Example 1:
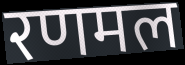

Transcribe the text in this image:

रणमल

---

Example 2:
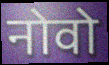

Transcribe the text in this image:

नोवो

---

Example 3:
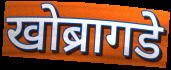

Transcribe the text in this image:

खोब्रागडे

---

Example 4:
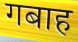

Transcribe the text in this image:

गबाह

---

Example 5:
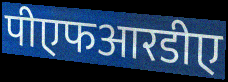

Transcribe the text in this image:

पीएफआरडीए